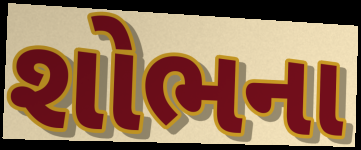
શોભના